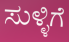
ಸುಳ್ಳಿಗೆ